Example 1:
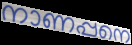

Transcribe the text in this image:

നാണപ്പനെ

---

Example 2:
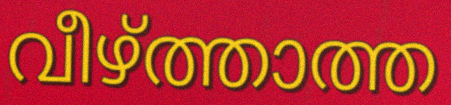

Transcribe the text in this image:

വീഴ്ത്താത്ത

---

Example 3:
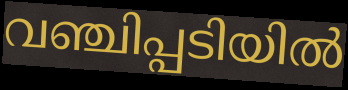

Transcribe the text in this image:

വഞ്ചിപ്പടിയിൽ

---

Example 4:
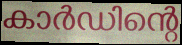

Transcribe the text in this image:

കാർഡിന്റെ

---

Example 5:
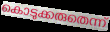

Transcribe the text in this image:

കൊടുക്കരുതെന്ന്